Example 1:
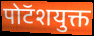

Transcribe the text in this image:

पोटॅशयुक्त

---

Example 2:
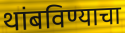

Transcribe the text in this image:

थांबविण्याचा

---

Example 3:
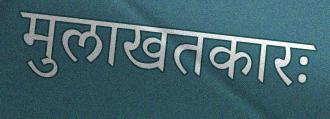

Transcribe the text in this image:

मुलाखतकारः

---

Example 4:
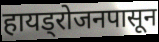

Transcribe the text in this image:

हायड्रोजनपासून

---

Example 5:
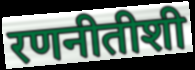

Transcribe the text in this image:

रणनीतीशी